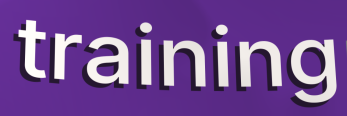
training